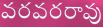
వరవరరావు